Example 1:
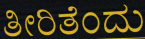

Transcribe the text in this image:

ತೀರಿತೆಂದು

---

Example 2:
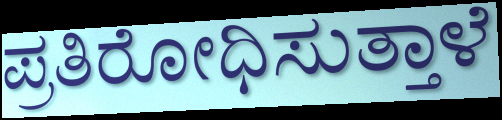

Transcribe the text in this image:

ಪ್ರತಿರೋಧಿಸುತ್ತಾಳೆ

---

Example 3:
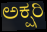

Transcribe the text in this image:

ಅಕ್ಷರಿ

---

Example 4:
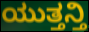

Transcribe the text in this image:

ಯುತ್ತನ್ತಿ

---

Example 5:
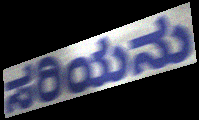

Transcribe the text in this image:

ಸರಿಯನು